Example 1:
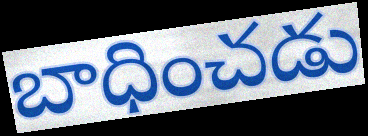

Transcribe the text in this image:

బాధించడు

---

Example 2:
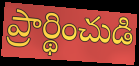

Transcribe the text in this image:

ప్రార్థించుడి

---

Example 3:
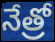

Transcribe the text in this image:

నేత్రో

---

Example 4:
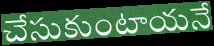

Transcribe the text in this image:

చేసుకుంటాయనే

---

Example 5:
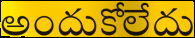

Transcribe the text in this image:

అందుకోలేదు